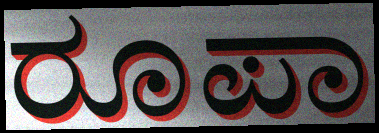
ರೂಪಾ